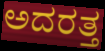
ಅದರತ್ತ